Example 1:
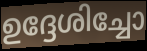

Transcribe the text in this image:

ഉദ്ദേശിച്ചോ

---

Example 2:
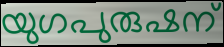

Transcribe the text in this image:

യുഗപുരുഷന്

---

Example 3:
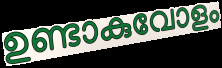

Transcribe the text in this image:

ഉണ്ടാകുവോളം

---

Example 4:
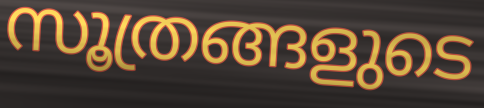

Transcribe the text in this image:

സൂത്രങ്ങളുടെ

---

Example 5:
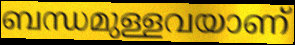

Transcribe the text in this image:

ബന്ധമുള്ളവയാണ്